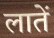
लातें